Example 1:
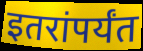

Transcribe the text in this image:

इतरांपर्यंत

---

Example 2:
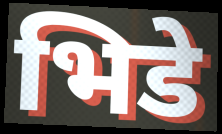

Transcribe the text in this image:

भिडे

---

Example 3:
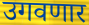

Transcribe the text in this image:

उगवणार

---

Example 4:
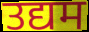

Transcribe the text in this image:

उद्यम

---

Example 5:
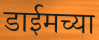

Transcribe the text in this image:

डाईमच्या